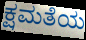
ಕ್ಷಮತೆಯ